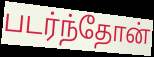
படர்ந்தோன்